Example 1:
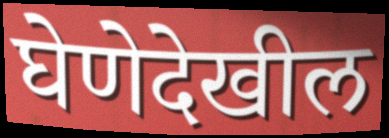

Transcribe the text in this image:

घेणेदेखील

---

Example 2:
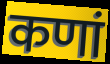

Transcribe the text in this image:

कणां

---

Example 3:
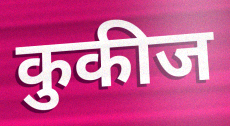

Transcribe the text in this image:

कुकीज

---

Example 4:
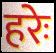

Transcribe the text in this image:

हरेः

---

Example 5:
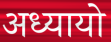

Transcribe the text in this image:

अध्यायो